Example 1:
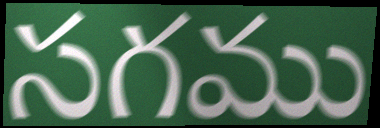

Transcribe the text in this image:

సగము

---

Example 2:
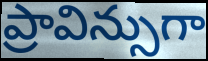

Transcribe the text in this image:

ప్రావిన్సుగా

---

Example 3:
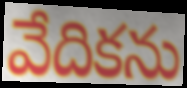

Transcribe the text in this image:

వేదికను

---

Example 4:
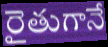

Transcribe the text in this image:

రైతుగానే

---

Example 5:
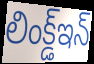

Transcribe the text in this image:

లింక్డ్ఇన్